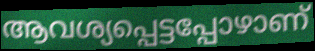
ആവശ്യപ്പെട്ടപ്പോഴാണ്